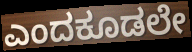
ಎಂದಕೂಡಲೇ